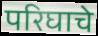
परिघाचे